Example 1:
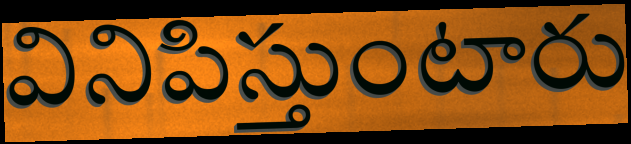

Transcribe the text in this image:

వినిపిస్తుంటారు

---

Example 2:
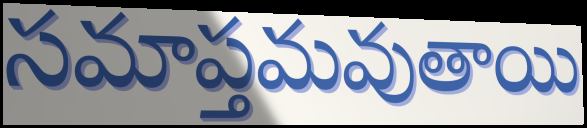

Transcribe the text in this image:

సమాప్తమవుతాయి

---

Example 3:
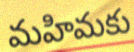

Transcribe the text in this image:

మహిమకు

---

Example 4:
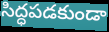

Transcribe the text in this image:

సిద్ధపడకుండా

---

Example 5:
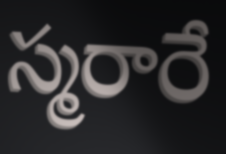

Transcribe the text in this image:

స్మరారే